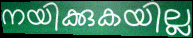
നയിക്കുകയില്ല